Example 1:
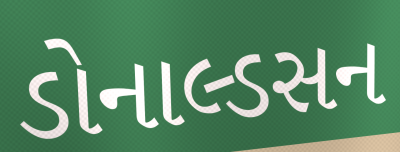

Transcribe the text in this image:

ડોનાલ્ડસન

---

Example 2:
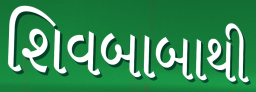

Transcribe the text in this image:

શિવબાબાથી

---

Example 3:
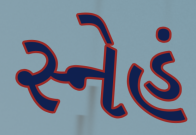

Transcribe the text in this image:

સ્નેહં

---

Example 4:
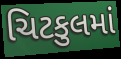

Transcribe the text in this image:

ચિટકુલમાં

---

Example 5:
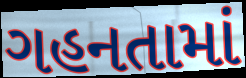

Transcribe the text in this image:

ગહનતામાં